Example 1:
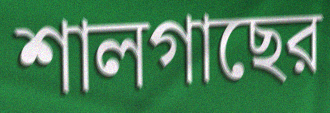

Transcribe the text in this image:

শালগাছের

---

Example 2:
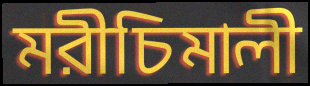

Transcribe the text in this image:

মরীচিমালী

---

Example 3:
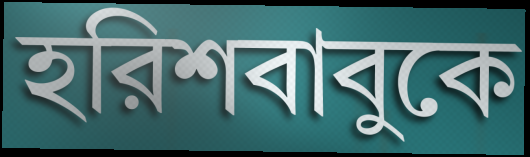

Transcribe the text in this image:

হরিশবাবুকে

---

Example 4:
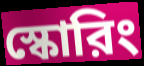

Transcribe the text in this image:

স্কোরিং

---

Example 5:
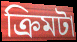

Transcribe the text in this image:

ক্রিমটা